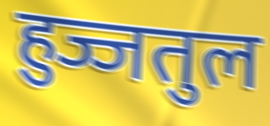
हुज्जतुल